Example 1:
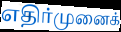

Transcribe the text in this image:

எதிர்முனைக்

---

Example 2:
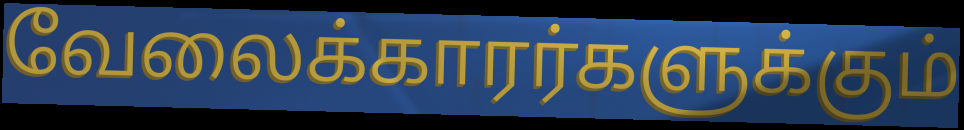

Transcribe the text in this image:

வேலைக்காரர்களுக்கும்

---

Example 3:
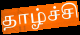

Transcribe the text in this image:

தாழ்ச்சி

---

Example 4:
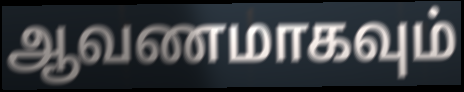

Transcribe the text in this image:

ஆவணமாகவும்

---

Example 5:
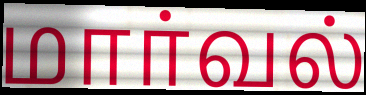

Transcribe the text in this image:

மார்வல்